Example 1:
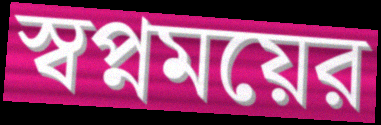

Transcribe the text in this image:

স্বপ্নময়ের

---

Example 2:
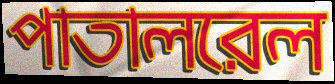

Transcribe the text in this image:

পাতালরেল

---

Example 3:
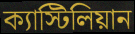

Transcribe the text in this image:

ক্যাস্টিলিয়ান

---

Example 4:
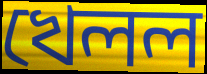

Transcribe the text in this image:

খেলল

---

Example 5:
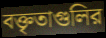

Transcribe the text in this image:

বক্তৃতাগুলির